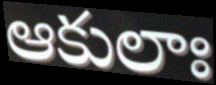
ఆకులాః